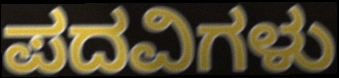
ಪದವಿಗಳು